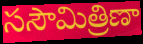
ససౌమిత్రిణా